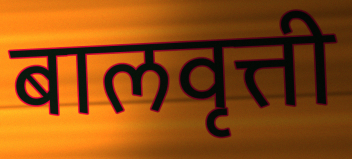
बालवृत्ती